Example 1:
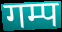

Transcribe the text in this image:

गम्प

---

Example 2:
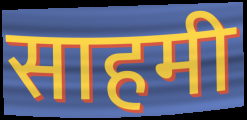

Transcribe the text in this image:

साहमी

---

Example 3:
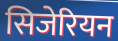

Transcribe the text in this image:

सिजेरियन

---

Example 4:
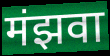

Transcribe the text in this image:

मंझवा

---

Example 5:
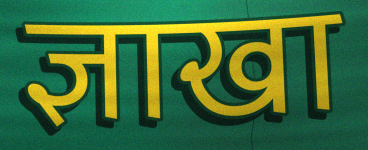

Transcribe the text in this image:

ज्ञाखा